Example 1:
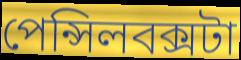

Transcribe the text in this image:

পেন্সিলবক্সটা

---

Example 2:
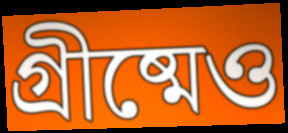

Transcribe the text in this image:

গ্রীষ্মেও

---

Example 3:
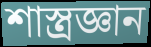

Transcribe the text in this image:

শাস্ত্রজ্ঞান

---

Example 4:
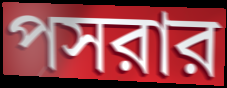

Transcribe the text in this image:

পসরার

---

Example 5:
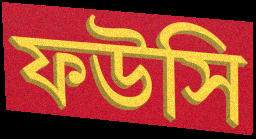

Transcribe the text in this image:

ফউসি